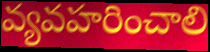
వ్యవహరించాలి